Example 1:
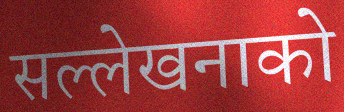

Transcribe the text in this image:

सल्लेखनाको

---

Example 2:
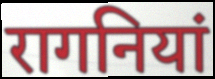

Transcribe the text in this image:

रागनियां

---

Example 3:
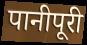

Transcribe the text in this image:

पानीपूरी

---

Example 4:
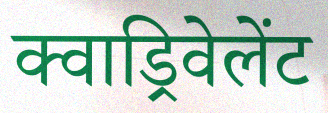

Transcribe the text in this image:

क्वाड्रिवेलेंट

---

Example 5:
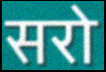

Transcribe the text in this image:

सरो